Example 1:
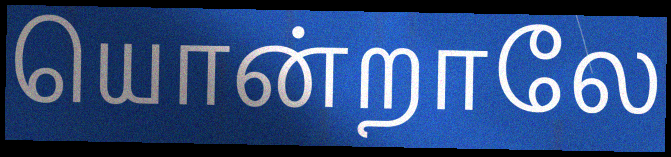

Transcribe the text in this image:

யொன்றாலே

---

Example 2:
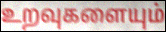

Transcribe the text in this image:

உறவுகளையும்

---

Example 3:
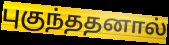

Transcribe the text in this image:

புகுந்ததனால்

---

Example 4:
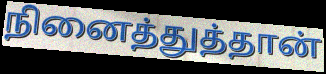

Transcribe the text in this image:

நினைத்துத்தான்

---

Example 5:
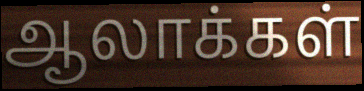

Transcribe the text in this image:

ஆலாக்கள்